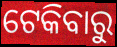
ଟେକିବାରୁ